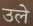
उले